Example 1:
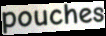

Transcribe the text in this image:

pouches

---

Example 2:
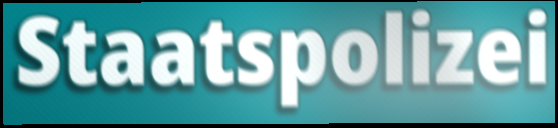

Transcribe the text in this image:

Staatspolizei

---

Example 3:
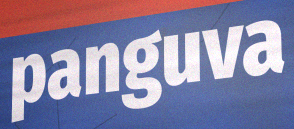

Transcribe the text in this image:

panguva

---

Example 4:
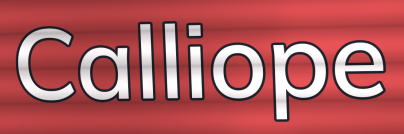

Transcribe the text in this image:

Calliope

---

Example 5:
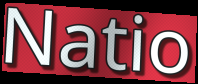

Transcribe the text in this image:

Natio